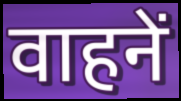
वाहनें